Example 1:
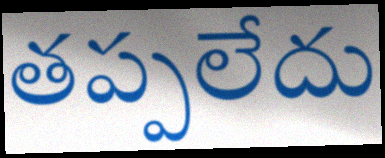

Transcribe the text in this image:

తప్పలేదు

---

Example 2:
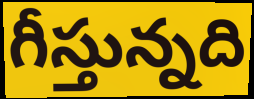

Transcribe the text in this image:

గీస్తున్నది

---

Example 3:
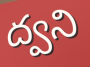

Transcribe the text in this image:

ద్వని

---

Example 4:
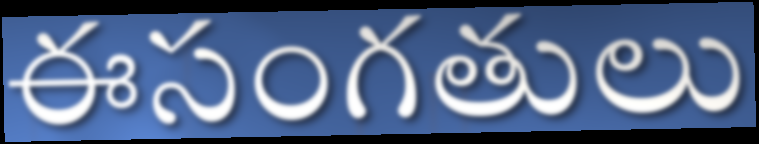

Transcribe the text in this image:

ఈసంగతులు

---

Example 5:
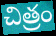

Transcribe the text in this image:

చిత్రం